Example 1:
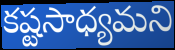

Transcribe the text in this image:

కష్టసాధ్యమని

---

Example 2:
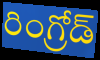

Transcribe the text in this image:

రింగ్రోడ్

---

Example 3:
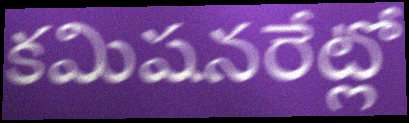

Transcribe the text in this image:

కమిషనరేట్లో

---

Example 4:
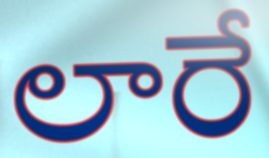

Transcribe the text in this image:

లారే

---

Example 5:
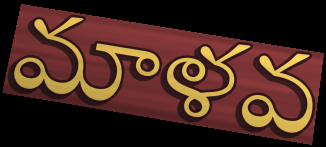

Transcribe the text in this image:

మాళవ